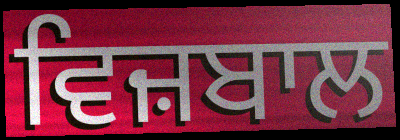
ਵਿਜ਼ਬਾਲ